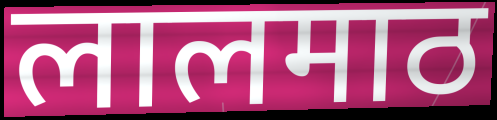
लालमाठ